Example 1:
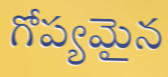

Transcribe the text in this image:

గోప్యమైన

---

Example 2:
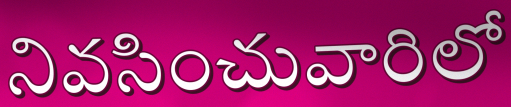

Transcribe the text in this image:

నివసించువారిలో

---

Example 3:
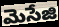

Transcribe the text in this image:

మెసేజి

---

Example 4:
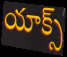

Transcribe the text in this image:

యాక్స్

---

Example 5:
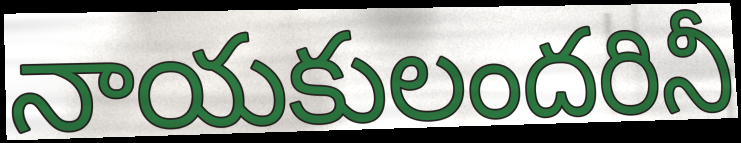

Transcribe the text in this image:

నాయకులందరినీ